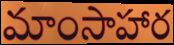
మాంసాహార